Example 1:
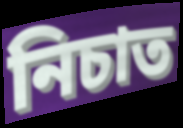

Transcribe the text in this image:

নিচাত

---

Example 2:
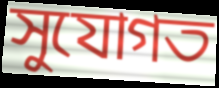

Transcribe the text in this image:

সুযোগত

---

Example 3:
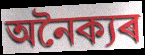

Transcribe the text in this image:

অনৈক্যৰ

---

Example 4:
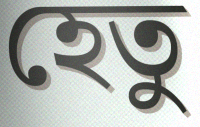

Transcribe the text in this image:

হেতু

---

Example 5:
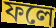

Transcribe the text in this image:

ফলে